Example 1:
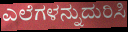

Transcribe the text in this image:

ಎಲೆಗಳನ್ನುದುರಿಸಿ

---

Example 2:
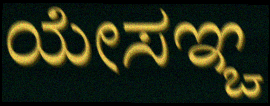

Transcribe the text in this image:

ಯೇಸಞ್ಚ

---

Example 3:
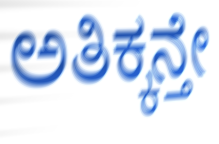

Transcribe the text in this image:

ಅತಿಕ್ಕನ್ತೇ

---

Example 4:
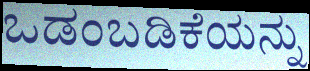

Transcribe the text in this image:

ಒಡಂಬಡಿಕೆಯನ್ನು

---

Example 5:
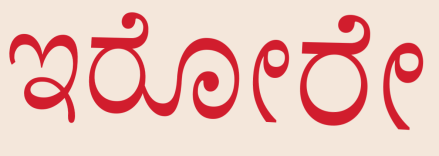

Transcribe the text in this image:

ಇರೋರೇ